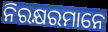
ନିରକ୍ଷରମାନେ